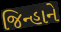
જિન્હાને